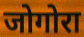
जोगोरा